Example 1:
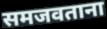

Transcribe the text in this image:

समजवताना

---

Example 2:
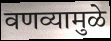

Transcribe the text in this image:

वणव्यामुळे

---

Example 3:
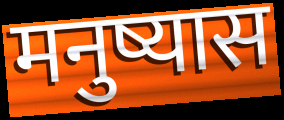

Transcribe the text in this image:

मनुष्यास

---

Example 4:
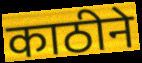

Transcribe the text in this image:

काठीने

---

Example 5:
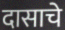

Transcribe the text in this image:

दासाचे